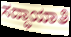
ಸದ್ಧಾಯಾತಿ